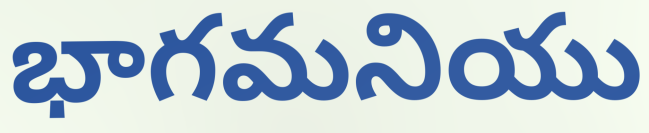
భాగమనియు